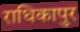
राधिकापुर